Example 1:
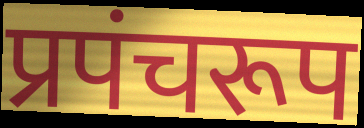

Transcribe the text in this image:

प्रपंचरूप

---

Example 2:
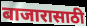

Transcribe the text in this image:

बाजारासाठी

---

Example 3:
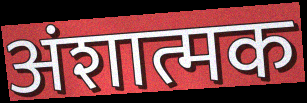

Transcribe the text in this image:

अंशात्मक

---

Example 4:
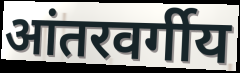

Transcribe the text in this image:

आंतरवर्गीय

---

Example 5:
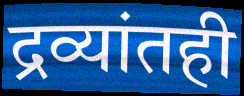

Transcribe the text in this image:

द्रव्यांतही